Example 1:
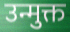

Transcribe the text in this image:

उन्मुक्त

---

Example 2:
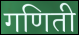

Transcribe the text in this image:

गणिती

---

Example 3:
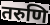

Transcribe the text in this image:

तरुणि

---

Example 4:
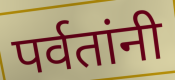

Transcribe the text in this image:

पर्वतांनी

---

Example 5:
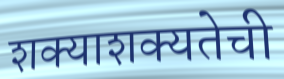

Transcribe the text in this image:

शक्याशक्यतेची